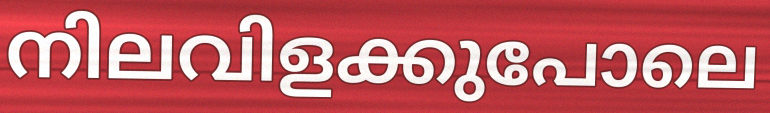
നിലവിളക്കുപോലെ